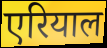
एरियाल